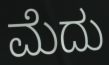
ಮೆದು